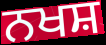
ਨਖਸ਼